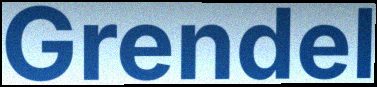
Grendel